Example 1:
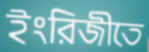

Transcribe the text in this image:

ইংরিজীতে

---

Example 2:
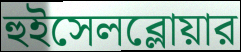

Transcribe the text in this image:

হুইসেলব্লোয়ার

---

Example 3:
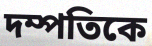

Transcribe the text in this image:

দম্পতিকে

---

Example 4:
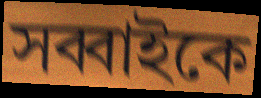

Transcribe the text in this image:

সব্বাইকে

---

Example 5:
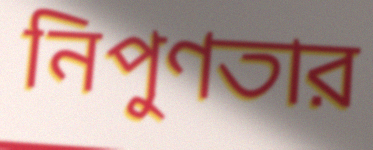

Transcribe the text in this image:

নিপুণতার